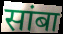
सांबा